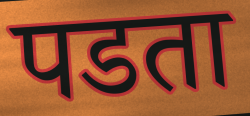
पडता